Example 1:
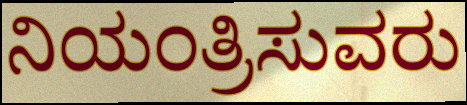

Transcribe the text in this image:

ನಿಯಂತ್ರಿಸುವರು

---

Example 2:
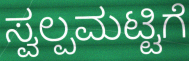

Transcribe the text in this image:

ಸ್ವಲ್ಪಮಟ್ಟಿಗೆ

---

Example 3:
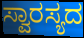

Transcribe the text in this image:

ಸ್ವಾರಸ್ಯದ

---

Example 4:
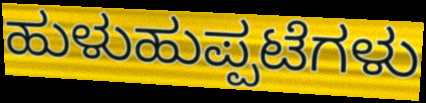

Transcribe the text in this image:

ಹುಳುಹುಪ್ಪಟೆಗಳು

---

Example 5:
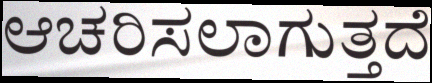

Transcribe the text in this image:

ಆಚರಿಸಲಾಗುತ್ತದೆ